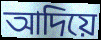
আদিয়ে